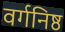
वर्गनिष्ठ